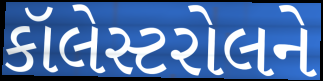
કૉલેસ્ટરોલને